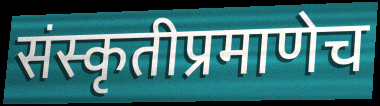
संस्कृतीप्रमाणेच